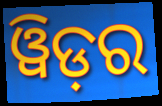
ୱିଡ଼ର